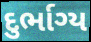
દુર્ભાગ્ય